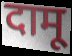
दामू